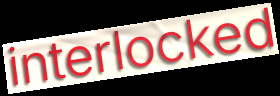
interlocked